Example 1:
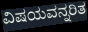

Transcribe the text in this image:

ವಿಷಯವನ್ನರಿತ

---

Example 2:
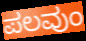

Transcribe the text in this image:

ಪಲವುಂ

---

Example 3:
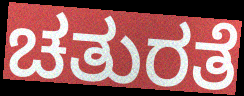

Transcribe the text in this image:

ಚತುರತೆ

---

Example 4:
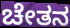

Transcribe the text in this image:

ಚೇತನ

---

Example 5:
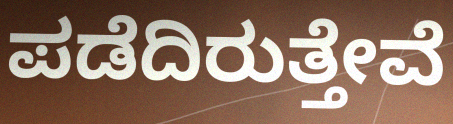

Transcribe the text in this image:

ಪಡೆದಿರುತ್ತೇವೆ